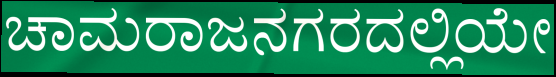
ಚಾಮರಾಜನಗರದಲ್ಲಿಯೇ